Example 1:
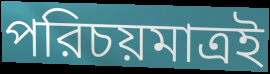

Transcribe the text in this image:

পরিচয়মাত্রই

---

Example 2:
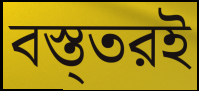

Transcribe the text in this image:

বস্ত্তরই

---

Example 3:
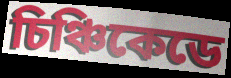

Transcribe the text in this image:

চিঞ্চিকেডে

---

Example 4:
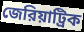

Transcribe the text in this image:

জেরিয়াট্রিক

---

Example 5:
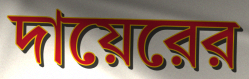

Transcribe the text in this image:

দায়েরের